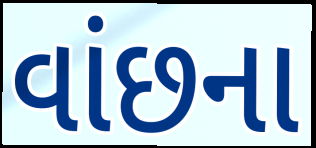
વાંછના